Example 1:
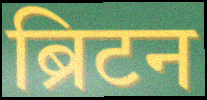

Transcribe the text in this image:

ब्रिटन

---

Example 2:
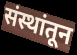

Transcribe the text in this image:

संस्थांतून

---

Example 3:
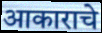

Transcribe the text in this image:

आकाराचे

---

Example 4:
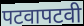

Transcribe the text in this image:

पटवापटवी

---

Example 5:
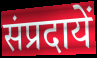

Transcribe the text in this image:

संप्रदायें